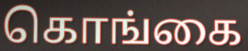
கொங்கை